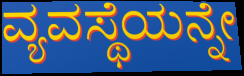
ವ್ಯವಸ್ಥೆಯನ್ನೇ